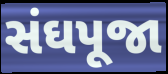
સંઘપૂજા